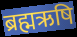
ब्रह्मऋषि